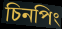
চিনপিং